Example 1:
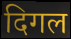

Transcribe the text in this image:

दिगल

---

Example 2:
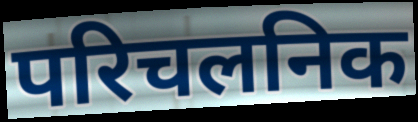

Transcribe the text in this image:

परिचलनिक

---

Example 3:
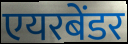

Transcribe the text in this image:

एयरबेंडर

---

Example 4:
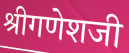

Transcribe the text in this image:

श्रीगणेशजी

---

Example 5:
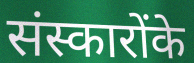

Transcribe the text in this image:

संस्कारोंके